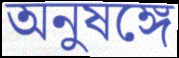
অনুষঙ্গে